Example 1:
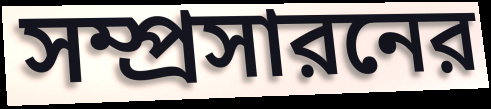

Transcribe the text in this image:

সম্প্রসারনের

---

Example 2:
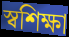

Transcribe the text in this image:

স্বশিক্ষা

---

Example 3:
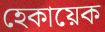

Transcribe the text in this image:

হেকায়েক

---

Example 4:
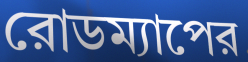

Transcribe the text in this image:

রোডম্যাপের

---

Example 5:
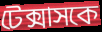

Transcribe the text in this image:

টেক্সাসকে